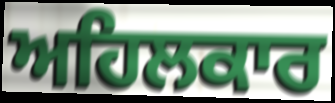
ਅਹਿਲਕਾਰ